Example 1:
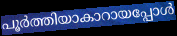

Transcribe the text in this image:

പൂർത്തിയാകാറായപ്പോൾ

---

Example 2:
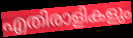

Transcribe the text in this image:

എതിരാളികളും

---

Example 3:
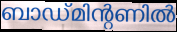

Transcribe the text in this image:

ബാഡ്മിന്റണിൽ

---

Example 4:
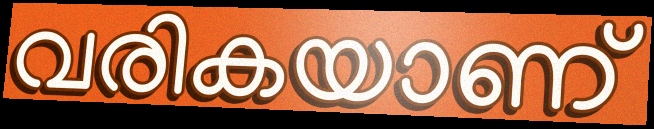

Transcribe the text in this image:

വരികയാണ്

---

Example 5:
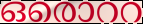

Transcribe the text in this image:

ഒരൊററ